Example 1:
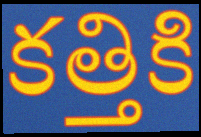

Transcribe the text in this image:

కత్తికి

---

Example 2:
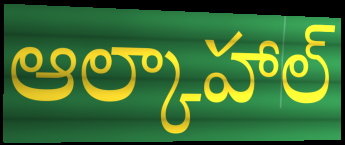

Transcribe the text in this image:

ఆల్కాహాల్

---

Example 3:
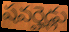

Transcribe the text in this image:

షవర్హెడ్లు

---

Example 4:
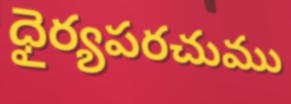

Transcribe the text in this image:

ధైర్యపరచుము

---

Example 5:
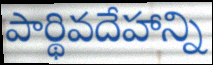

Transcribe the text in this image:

పార్థివదేహాన్ని